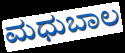
ಮಧುಬಾಲ